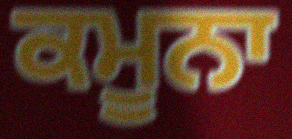
ਕਮੂਨਾ